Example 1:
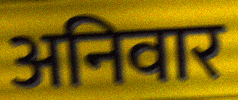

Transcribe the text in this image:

अनिवार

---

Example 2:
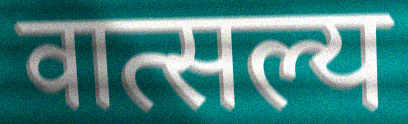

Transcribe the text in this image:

वात्सल्य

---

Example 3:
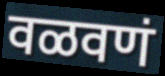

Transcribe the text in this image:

वळवणं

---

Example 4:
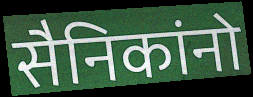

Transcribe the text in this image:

सैनिकांनो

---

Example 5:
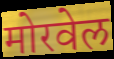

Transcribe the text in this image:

मोरवेल